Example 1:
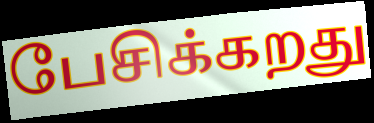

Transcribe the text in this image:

பேசிக்கறது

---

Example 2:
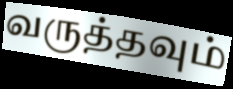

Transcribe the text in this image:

வருத்தவும்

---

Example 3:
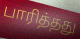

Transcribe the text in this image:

பாரித்தது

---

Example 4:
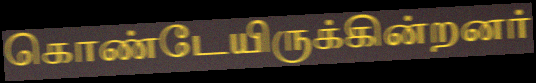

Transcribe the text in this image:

கொண்டேயிருக்கின்றனர்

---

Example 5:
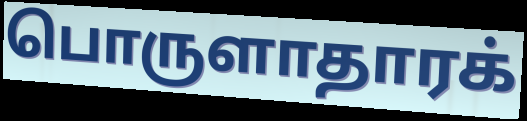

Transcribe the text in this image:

பொருளாதாரக்